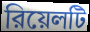
রিয়েলটি